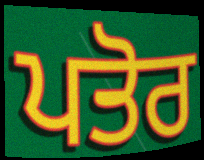
ਪਤੋਰ